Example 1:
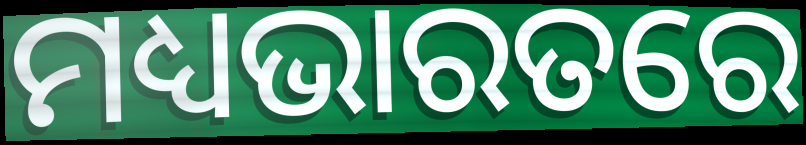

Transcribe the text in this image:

ମଧ୍ୟଭାରତରେ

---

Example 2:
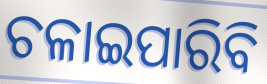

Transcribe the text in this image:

ଚଳାଇପାରିବି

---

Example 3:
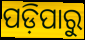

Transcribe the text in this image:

ପଡ଼ିପାରୁ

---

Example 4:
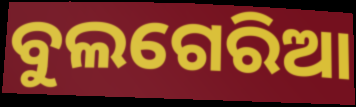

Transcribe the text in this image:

ବୁଲଗେରିଆ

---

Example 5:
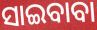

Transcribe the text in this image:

ସାଇବାବା